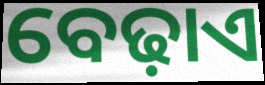
ବେଢ଼ାଏ